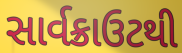
સાર્વક્રાઉટથી